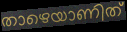
താഴെയാണിത്